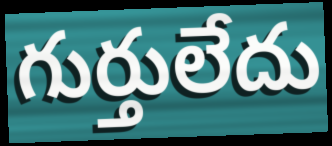
గుర్తులేదు